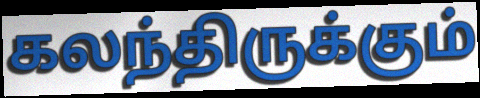
கலந்திருக்கும்